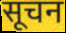
सूचन